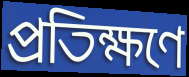
প্রতিক্ষণে